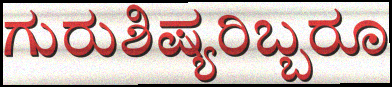
ಗುರುಶಿಷ್ಯರಿಬ್ಬರೂ